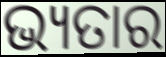
ଭ୍ୟତାର